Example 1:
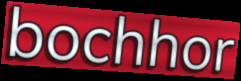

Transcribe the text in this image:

bochhor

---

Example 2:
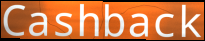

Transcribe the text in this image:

Cashback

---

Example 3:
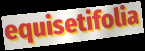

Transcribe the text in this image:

equisetifolia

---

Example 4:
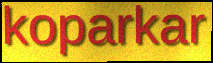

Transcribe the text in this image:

koparkar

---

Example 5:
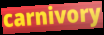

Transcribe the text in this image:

carnivory